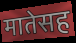
मातेसह